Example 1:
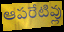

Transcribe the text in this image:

ఆపరేటివ్లు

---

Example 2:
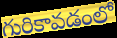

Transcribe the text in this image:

గురికావడంలో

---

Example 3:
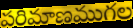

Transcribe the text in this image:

పరిమాణముగల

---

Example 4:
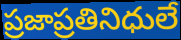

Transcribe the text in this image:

ప్రజాప్రతినిధులే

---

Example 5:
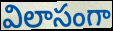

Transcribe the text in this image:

విలాసంగా